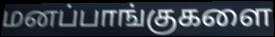
மனப்பாங்குகளை